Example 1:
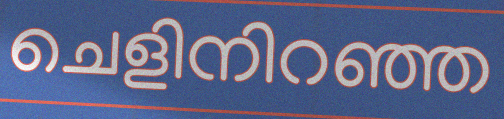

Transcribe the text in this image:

ചെളിനിറഞ്ഞ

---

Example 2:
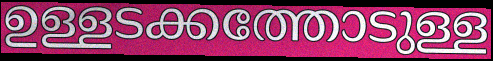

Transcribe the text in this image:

ഉള്ളടക്കത്തോടുള്ള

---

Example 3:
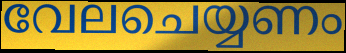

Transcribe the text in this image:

വേലചെയ്യണം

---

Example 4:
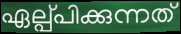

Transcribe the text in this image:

ഏല്പ്പിക്കുന്നത്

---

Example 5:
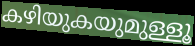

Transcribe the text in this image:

കഴിയുകയുമുള്ളൂ